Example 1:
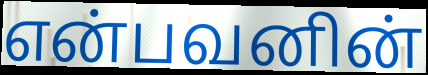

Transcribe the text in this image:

என்பவனின்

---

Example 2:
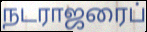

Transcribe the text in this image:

நடராஜரைப்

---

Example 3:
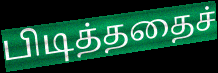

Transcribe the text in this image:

பிடித்ததைச்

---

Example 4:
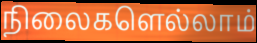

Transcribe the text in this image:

நிலைகளெல்லாம்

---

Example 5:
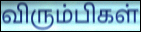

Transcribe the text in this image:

விரும்பிகள்